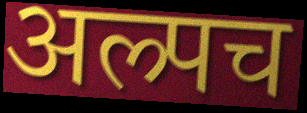
अल्पच